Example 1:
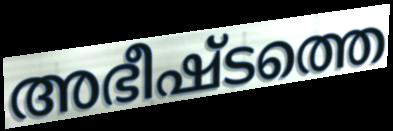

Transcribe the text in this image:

അഭീഷ്ടത്തെ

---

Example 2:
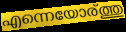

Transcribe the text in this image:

എന്നെയോര്ത്തു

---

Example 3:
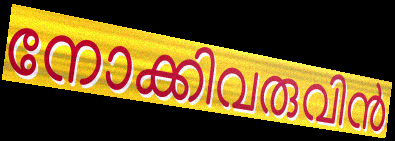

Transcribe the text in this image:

നോക്കിവരുവിൻ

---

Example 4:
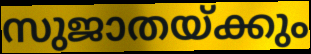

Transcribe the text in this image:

സുജാതയ്ക്കും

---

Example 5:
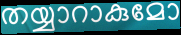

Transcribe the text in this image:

തയ്യാറാകുമോ